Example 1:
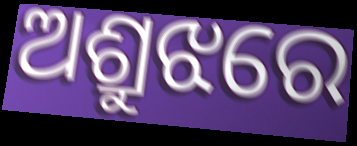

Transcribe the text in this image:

ଅଶ୍ରୁଝରେ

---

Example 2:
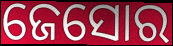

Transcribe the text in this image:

ଜେସୋର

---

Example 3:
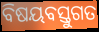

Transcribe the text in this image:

ବିଷୟବସ୍ତୁଗତ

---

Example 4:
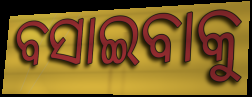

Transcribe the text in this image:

ବସାଇବାକୁ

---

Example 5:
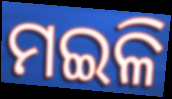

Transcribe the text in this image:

ମଇଳି